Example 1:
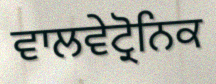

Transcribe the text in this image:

ਵਾਲਵੇਟ੍ਰੋਨਿਕ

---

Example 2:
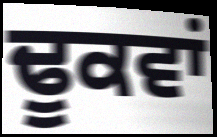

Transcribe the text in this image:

ਢੂਕਵਾਂ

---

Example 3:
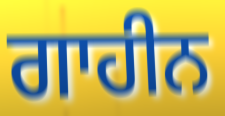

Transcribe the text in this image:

ਗਾਹੀਨ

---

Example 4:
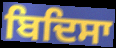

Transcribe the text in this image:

ਬਿਦਿਸਾ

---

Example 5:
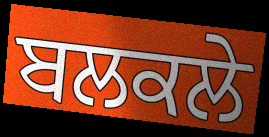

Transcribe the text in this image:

ਬਲਕਲੇ